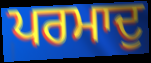
ਪਰਮਾਦੁ